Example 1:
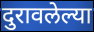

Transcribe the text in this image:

दुरावलेल्या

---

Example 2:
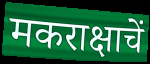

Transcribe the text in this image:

मकराक्षाचें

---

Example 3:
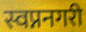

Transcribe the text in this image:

स्वप्ननगरी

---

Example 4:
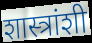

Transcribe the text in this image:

शास्त्रांशी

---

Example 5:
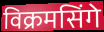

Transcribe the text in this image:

विक्रमसिंगे